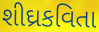
શીઘ્રકવિતા